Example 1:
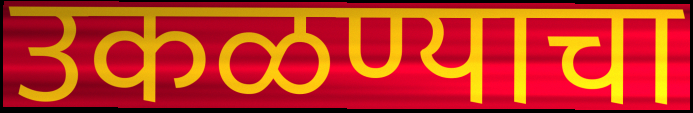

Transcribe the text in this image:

उकळण्याचा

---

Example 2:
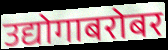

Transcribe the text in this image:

उद्योगाबरोबर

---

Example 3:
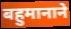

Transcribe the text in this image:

बहुमानाने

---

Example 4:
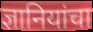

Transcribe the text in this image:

ज्ञानियांचा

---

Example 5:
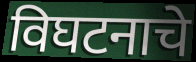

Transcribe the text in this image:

विघटनाचे